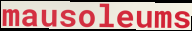
mausoleums